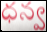
ధన్వ